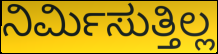
ನಿರ್ಮಿಸುತ್ತಿಲ್ಲ